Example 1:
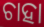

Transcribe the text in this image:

ଚାହା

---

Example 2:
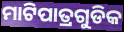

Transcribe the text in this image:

ମାଟିପାତ୍ରଗୁଡିକ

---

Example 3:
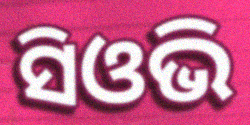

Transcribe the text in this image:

ସିଓଭି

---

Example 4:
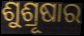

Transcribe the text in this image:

ଶୁଶ୍ରୂଷାର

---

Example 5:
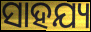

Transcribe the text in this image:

ସାହଯ୍ୟ